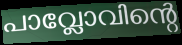
പാവ്ലോവിന്റെ